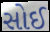
સોઈ